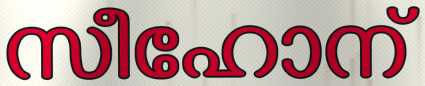
സീഹോന്